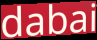
dabai